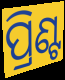
ପ୍ରିଣ୍ଟ